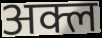
अक्ल